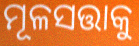
ମୂଳସତ୍ତାକୁ